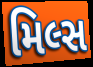
મિલ્સ